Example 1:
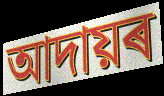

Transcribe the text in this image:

আদায়ৰ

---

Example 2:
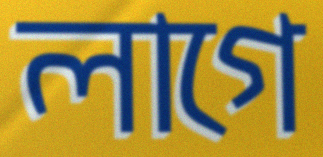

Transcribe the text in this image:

লাগে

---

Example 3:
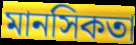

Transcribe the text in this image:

মানসিকতা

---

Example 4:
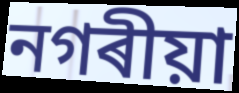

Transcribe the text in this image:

নগৰীয়া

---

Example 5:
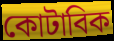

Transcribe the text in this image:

কোটাবিক